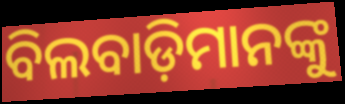
ବିଲବାଡ଼ିମାନଙ୍କୁ